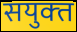
सयुक्‍त